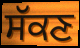
ਸੱਕਣ